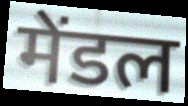
मेंडल